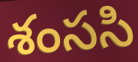
శంససి